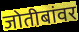
जोतीबांवर